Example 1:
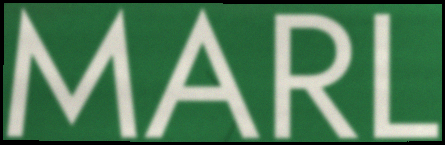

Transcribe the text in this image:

MARL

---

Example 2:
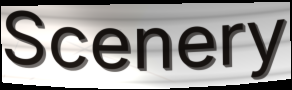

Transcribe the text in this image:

Scenery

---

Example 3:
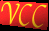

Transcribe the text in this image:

VCC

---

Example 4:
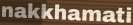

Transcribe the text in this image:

nakkhamati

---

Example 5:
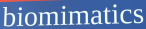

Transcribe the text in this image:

biomimatics